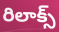
రిలాక్స్